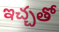
ఇచ్చతో